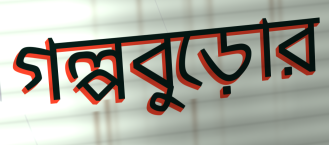
গল্পবুড়োর